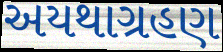
અયથાગ્રહણ